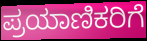
ಪ್ರಯಾಣಿಕರಿಗೆ